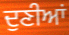
ਦੁਣੀਆਂ